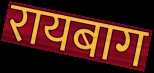
रायबाग